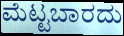
ಮೆಟ್ಟಬಾರದು